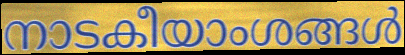
നാടകീയാംശങ്ങൾ